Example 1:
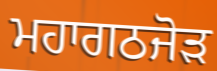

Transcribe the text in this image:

ਮਹਾਗਠਜੋੜ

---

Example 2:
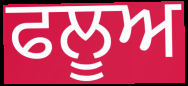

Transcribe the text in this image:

ਫਲੂਅ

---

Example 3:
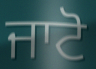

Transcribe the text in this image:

ਜਾਟੋ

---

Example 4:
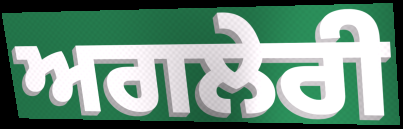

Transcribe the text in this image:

ਅਗਲੇਰੀ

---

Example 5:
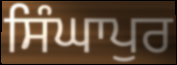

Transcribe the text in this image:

ਸਿੰਘਾਪੁਰ